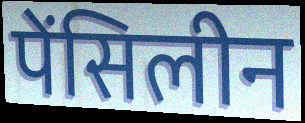
पेंसिलीन